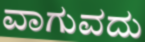
ವಾಗುವದು